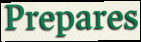
Prepares